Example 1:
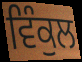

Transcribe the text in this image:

ਵਿੰਕੁਲ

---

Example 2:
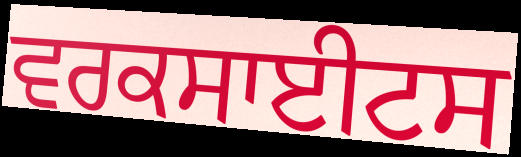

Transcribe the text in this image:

ਵਰਕਸਾਈਟਸ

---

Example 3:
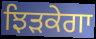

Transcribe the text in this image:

ਝਿੜਕੇਗਾ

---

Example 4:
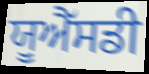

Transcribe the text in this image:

ਯੂਐੱਸਡੀ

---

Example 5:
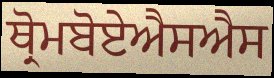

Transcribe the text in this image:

ਥ੍ਰੋਮਬੋਏਐਸਐਸ